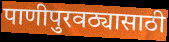
पाणीपुरवठ्यासाठी